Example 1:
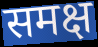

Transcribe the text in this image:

समक्ष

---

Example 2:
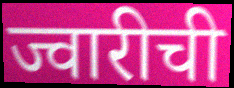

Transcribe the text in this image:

ज्वारीची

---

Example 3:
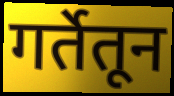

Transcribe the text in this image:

गर्तेतून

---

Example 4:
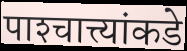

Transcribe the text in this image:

पाश्चात्त्यांकडे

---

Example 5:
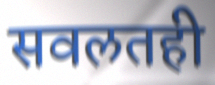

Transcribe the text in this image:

सवलतही